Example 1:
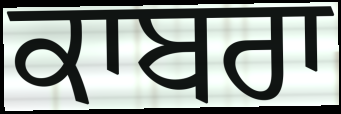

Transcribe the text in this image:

ਕਾਬਰਾ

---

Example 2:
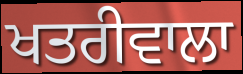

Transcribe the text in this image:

ਖਤਰੀਵਾਲਾ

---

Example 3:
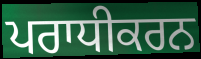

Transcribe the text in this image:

ਪਰਾਧੀਕਰਨ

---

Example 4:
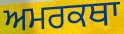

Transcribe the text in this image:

ਅਮਰਕਥਾ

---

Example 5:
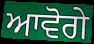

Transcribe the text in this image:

ਆਵੋਗੇ